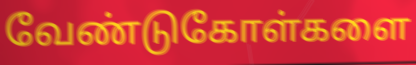
வேண்டுகோள்களை